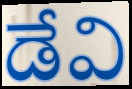
డేవి